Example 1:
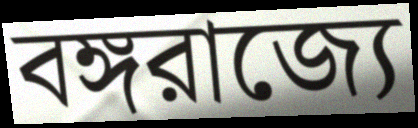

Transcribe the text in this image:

বঙ্গরাজ্যে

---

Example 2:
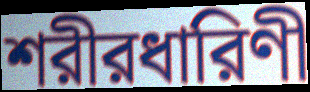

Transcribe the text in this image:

শরীরধারিণী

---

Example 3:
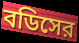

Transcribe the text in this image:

বডিসের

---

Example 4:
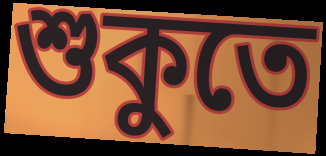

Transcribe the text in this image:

শুকুতে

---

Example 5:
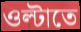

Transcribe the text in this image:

ওল্টাতে